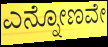
ಎನ್ನೋಣವೇ